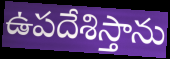
ఉపదేశిస్తాను